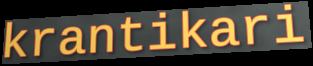
krantikari